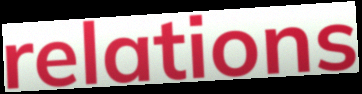
relations